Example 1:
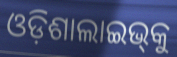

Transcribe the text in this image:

ଓଡ଼ିଶାଲାଇଭ୍‌କୁ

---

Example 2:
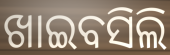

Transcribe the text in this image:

ଖାଇବସିଲି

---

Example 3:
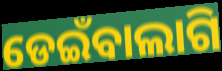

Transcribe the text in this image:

ଡେଇଁବାଲାଗି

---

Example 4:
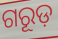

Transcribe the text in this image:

ଗରୂଡ଼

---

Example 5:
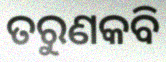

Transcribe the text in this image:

ତରୁଣକବି